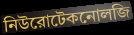
নিউরোটেকনোলজি